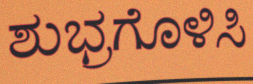
ಶುಭ್ರಗೊಳಿಸಿ